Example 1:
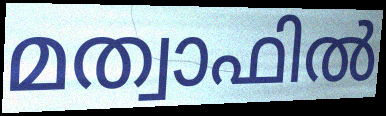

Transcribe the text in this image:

മത്വാഫിൽ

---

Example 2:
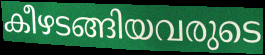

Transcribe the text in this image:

കീഴടങ്ങിയവരുടെ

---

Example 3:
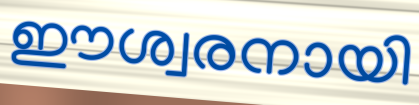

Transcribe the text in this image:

ഈശ്വരനായി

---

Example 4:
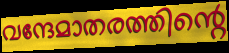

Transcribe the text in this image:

വന്ദേമാതരത്തിന്റെ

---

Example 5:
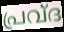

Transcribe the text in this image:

പ്രവ്ദ